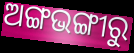
ଅଙ୍ଗଭଙ୍ଗୀରୁ